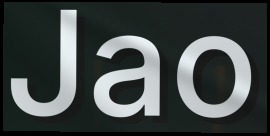
Jao